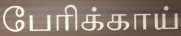
பேரிக்காய்